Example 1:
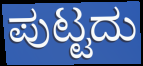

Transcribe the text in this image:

ಪುಟ್ಟದು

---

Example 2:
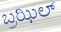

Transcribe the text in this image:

ಬ್ರಝಿಲ್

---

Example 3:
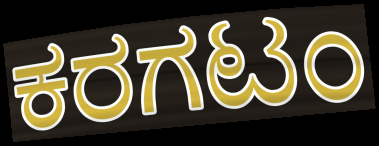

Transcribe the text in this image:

ಕರಗಟಂ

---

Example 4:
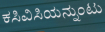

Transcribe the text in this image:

ಕಸಿವಿಸಿಯನ್ನುಂಟು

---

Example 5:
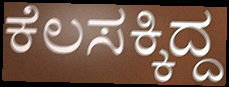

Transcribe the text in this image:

ಕೆಲಸಕ್ಕಿದ್ದ